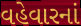
વહેવારનાં